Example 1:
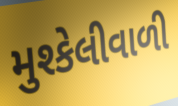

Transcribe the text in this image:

મુશ્કેલીવાળી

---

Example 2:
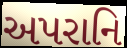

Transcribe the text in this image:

અપરાનિ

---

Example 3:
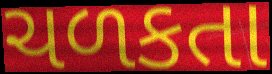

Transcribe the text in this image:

ચળકતા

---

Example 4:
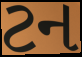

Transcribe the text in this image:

ટન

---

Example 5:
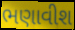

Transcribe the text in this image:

ભણાવીશ